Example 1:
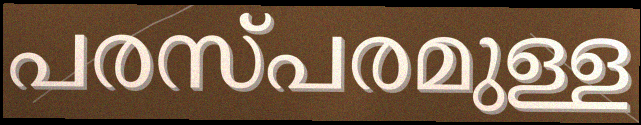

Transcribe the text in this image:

പരസ്പരമുള്ള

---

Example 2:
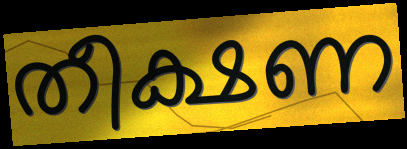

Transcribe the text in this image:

തീക്ഷണ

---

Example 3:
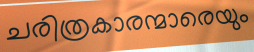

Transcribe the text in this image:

ചരിത്രകാരന്മാരെയും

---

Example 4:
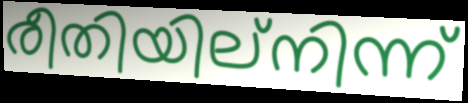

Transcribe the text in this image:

രീതിയില്നിന്ന്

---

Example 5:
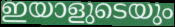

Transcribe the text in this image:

ഇയാളുടെയും